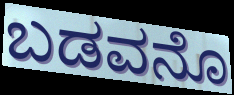
ಬಡವನೊ